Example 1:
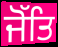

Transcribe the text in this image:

ਜੋੱਤਿ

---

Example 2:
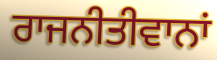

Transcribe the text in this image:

ਰਾਜਨੀਤੀਵਾਨਾਂ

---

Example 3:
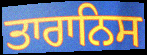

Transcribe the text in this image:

ਤਾਰਾਨਿਸ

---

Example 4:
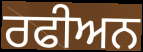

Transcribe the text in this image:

ਰਫੀਅਨ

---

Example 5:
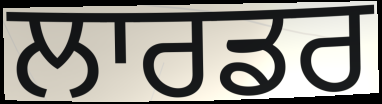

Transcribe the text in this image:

ਲਾਰਡਰ